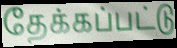
தேக்கப்பட்டு